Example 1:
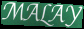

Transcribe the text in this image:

MALAY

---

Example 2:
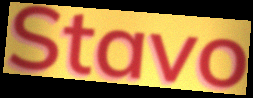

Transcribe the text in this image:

Stavo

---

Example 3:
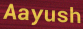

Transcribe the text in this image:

Aayush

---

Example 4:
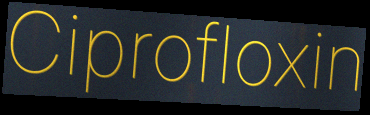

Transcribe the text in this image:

Ciprofloxin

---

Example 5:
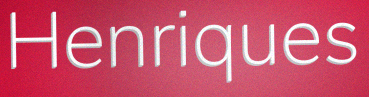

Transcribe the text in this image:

Henriques